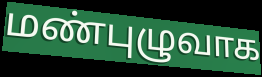
மண்புழுவாக